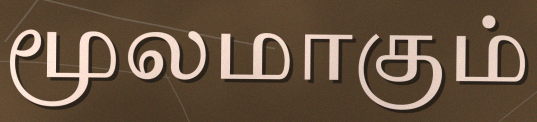
மூலமாகும்